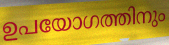
ഉപയോഗത്തിനും